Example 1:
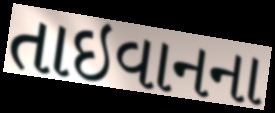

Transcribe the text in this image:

તાઇવાનના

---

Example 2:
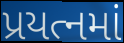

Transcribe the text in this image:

પ્રયત્નમાં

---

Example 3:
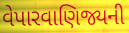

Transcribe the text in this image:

વેપારવાણિજ્યની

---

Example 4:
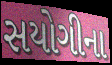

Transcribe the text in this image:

સયોગીના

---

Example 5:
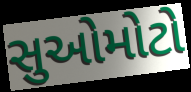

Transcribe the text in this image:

સુઓમોટો